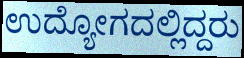
ಉದ್ಯೋಗದಲ್ಲಿದ್ದರು